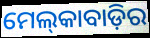
ମେଲ୍‍କାବାଡ଼ିର